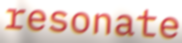
resonate